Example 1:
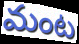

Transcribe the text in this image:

మంట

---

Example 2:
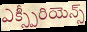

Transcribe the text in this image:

ఎక్స్పీరియెన్స్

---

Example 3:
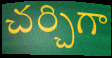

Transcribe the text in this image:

చర్చిగా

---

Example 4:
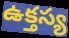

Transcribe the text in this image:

ఉక్తస్య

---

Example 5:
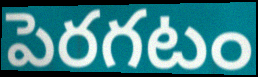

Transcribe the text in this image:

పెరగటం